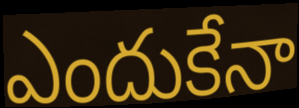
ఎందుకేనా